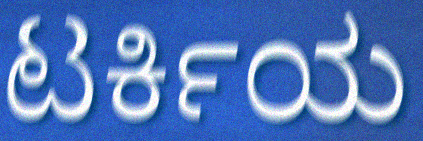
ಟರ್ಕಿಯ